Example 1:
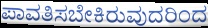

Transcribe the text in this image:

ಪಾವತಿಸಬೇಕಿರುವುದರಿಂದ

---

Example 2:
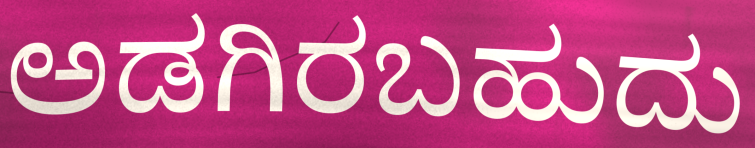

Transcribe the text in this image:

ಅಡಗಿರಬಹುದು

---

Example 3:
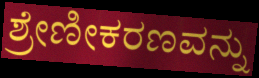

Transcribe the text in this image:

ಶ್ರೇಣೀಕರಣವನ್ನು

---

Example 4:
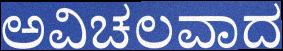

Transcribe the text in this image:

ಅವಿಚಲವಾದ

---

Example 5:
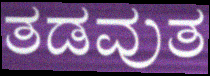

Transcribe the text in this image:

ತಡವುತ